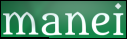
manei